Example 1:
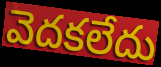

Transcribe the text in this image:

వెదకలేదు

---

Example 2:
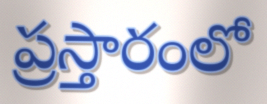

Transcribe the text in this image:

ప్రస్తారంలో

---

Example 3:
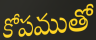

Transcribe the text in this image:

కోపముతో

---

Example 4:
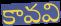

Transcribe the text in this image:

కావవి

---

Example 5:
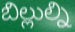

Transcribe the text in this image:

బిల్లుల్ని